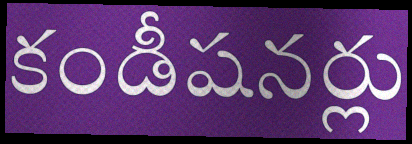
కండీషనర్లు